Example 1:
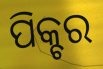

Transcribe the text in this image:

ପିକ୍ଚର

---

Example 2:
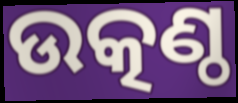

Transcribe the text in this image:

ଉତ୍କଣ୍ଠ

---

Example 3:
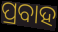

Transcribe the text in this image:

ପ୍ରବାହ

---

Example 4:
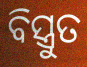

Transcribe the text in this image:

ବିସ୍ତ୍ରୁତ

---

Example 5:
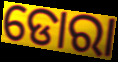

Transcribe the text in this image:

ଡୋରା